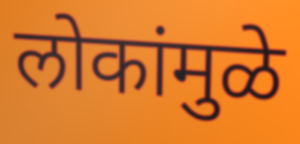
लोकांमुळे